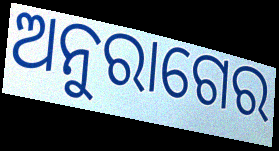
ଅନୁରାଗେର